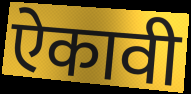
ऐकावी